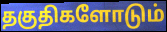
தகுதிகளோடும்